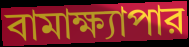
বামাক্ষ্যাপার